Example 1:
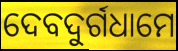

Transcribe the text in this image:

ଦେବଦୁର୍ଗଧାମେ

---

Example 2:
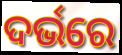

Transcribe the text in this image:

ଦର୍ଭରେ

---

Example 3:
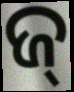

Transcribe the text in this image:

ଜ୍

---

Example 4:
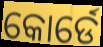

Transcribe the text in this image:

କୋର୍ଡେ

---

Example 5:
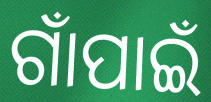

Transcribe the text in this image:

ଗାଁପାଇଁ